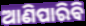
ଆଣିପାରିବି